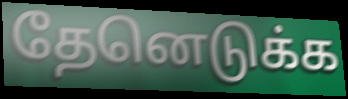
தேனெடுக்க